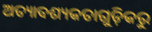
ଅତ୍ୟାବଶ୍ୟକତାଗୁଡ଼ିକରୁ